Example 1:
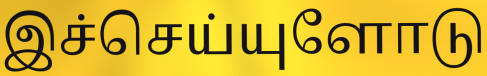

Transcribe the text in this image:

இச்செய்யுளோடு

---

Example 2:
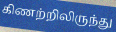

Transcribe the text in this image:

கிணற்றிலிருந்து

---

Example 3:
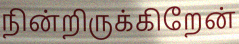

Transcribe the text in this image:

நின்றிருக்கிறேன்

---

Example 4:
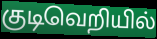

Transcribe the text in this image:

குடிவெறியில்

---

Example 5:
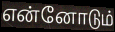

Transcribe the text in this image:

என்னோடும்